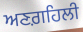
ਅਣਗ਼ਹਿਲੀ